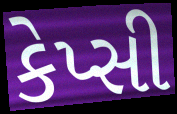
કેપ્સી